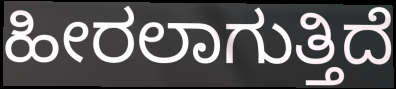
ಹೀರಲಾಗುತ್ತಿದೆ